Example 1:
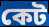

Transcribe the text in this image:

কেট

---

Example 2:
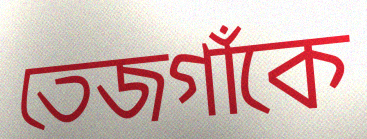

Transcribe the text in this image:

তেজগাঁকে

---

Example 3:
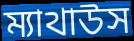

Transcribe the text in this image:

ম্যাথাউস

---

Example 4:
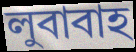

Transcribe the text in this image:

লুবাবাহ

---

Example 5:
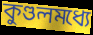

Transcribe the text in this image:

কুণ্ডলমধ্যে